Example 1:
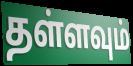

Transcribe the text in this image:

தள்ளவும்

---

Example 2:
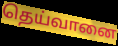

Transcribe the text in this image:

தெய்வானை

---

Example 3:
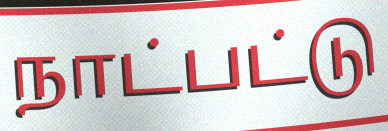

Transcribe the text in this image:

நாட்பட்டு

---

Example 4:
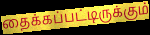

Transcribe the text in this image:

தைக்கப்பட்டிருக்கும்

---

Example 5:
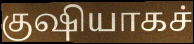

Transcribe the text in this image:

குஷியாகச்